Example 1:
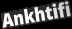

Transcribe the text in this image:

Ankhtifi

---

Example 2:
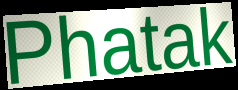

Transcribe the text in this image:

Phatak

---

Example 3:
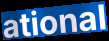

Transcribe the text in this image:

ational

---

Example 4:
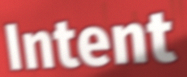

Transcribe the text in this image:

Intent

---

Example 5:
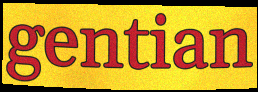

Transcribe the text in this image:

gentian